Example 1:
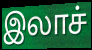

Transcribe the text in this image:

இலாச்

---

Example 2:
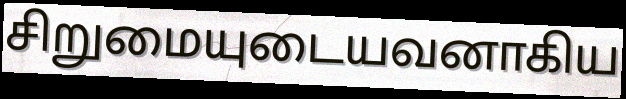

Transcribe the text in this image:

சிறுமையுடையவனாகிய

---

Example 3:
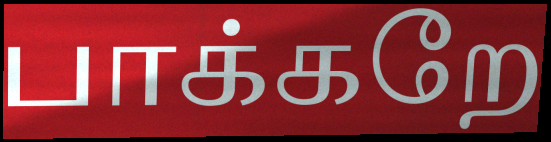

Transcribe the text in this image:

பாக்கறே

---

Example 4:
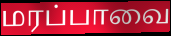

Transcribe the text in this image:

மரப்பாவை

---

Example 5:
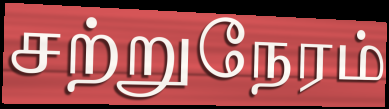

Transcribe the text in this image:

சற்றுநேரம்